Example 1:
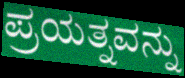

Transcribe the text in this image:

ಪ್ರಯತ್ನವನ್ನು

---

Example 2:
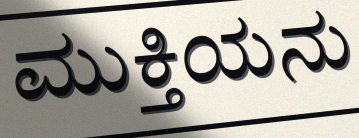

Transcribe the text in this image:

ಮುಕ್ತಿಯನು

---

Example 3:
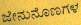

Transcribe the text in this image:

ಜೇನುನೊಣಗಳ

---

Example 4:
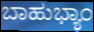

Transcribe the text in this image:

ಬಾಹುಭ್ಯಾಂ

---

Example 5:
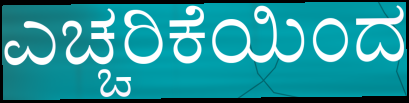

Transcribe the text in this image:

ಎಚ್ಚರಿಕೆಯಿಂದ